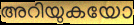
അറിയുകയോ